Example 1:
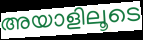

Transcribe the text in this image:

അയാളിലൂടെ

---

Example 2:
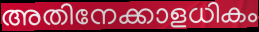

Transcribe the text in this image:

അതിനേക്കാളധികം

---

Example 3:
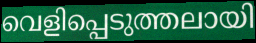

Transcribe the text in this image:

വെളിപ്പെടുത്തലായി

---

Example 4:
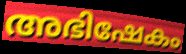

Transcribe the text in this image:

അഭിഷേകം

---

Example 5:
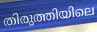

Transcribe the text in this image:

തിരുത്തിയിലെ